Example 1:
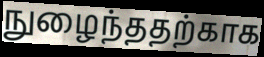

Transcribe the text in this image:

நுழைந்ததற்காக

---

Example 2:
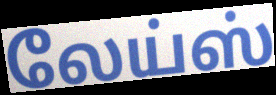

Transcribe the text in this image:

லேய்ஸ்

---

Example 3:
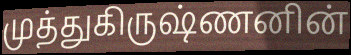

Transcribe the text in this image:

முத்துகிருஷ்ணனின்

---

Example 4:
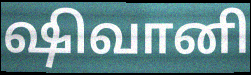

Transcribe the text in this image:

ஷிவானி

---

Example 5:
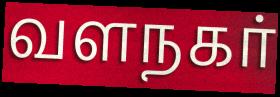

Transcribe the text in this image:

வளநகர்